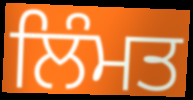
ਲਿੰਮਤ